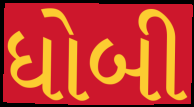
ધોબી